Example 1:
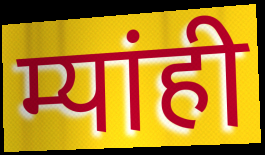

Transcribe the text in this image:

म्यांही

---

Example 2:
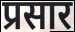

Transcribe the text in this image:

प्रसार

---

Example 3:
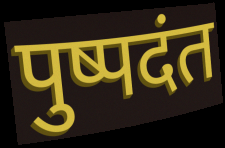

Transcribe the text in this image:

पुष्पदंत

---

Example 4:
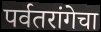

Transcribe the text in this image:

पर्वतरांगेचा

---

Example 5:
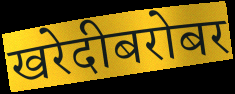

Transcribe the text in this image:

खरेदीबरोबर